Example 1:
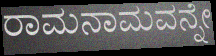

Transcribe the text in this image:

ರಾಮನಾಮವನ್ನೇ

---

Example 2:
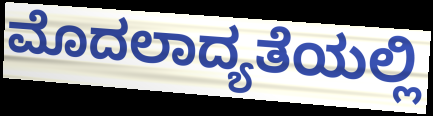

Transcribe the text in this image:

ಮೊದಲಾದ್ಯತೆಯಲ್ಲಿ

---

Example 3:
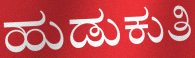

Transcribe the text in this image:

ಹುಡುಕುತಿ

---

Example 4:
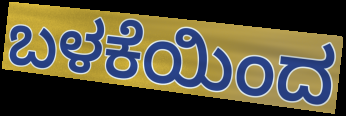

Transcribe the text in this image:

ಬಳಕೆಯಿಂದ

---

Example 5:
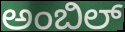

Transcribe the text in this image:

ಅಂಬಿಲ್